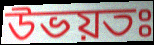
উভয়তঃ